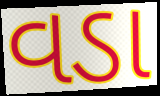
વડા